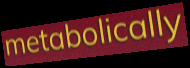
metabolically